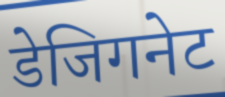
डेजिगनेट